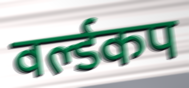
वर्ल्डकप